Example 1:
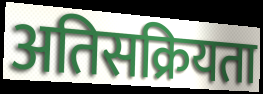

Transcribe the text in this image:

अतिसक्रियता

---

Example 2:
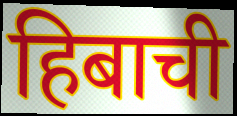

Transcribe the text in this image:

हिबाची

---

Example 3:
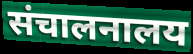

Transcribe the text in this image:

संचालनालय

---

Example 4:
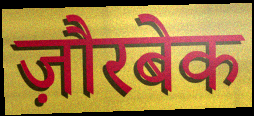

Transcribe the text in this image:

ज़ौरबेक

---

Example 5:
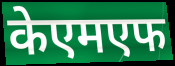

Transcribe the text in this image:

केएमएफ